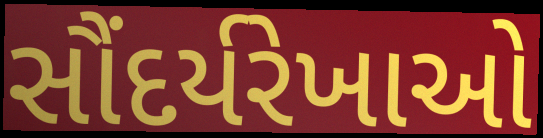
સૌંદર્યરેખાઓ